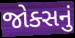
જોક્સનું